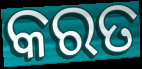
କରତ